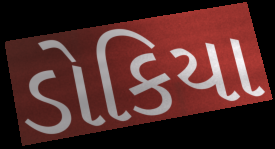
ડોકિયા